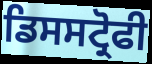
ਡਿਸਸਟ੍ਰੋਫੀ